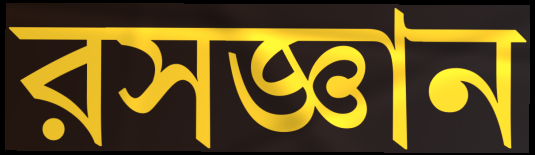
রসজ্ঞান